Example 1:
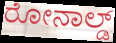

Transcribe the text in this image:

ರೋನಾಲ್ಡ್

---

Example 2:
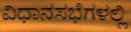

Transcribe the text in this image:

ವಿಧಾನಸಭೆಗಳಲ್ಲಿ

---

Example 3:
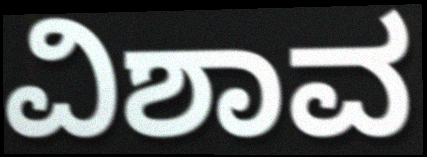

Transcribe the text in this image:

ವಿಶಾವ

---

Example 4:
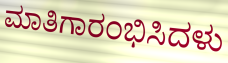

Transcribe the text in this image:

ಮಾತಿಗಾರಂಭಿಸಿದಳು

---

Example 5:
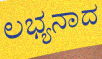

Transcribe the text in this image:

ಲಭ್ಯನಾದ